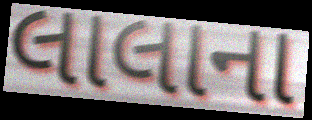
લાલાના